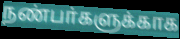
நண்பர்களுக்காக